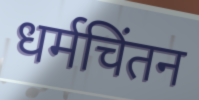
धर्मचिंतन